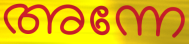
അന്നേ